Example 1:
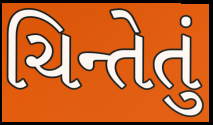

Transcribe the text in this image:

ચિન્તેતું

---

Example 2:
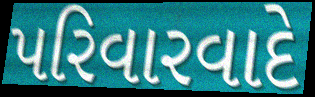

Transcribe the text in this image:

પરિવારવાદે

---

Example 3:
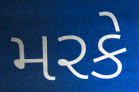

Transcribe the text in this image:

મરકે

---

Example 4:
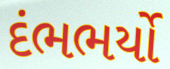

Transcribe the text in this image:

દંભભર્યો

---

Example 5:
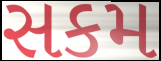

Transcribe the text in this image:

સકમ